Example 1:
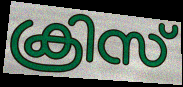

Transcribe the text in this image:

ക്രിസ്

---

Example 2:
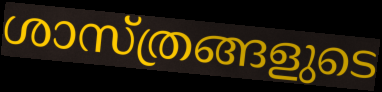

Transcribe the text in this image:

ശാസ്ത്രങ്ങളുടെ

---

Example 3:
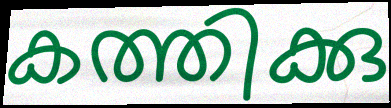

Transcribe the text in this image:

കത്തിക്കു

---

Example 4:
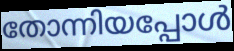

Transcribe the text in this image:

തോന്നിയപ്പോൾ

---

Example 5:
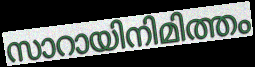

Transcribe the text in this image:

സാറായിനിമിത്തം